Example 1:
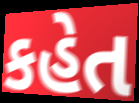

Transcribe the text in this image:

કહેત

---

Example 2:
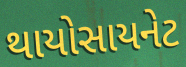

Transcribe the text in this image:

થાયોસાયનેટ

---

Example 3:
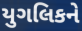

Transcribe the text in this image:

યુગલિકને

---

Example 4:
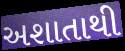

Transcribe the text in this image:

અશાતાથી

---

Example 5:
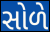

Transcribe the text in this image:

સોળે